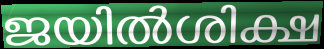
ജയിൽശിക്ഷ